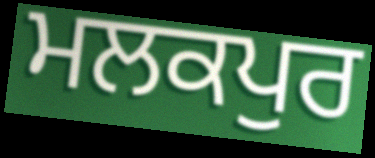
ਮਲਕਪੁਰ